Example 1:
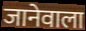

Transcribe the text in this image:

जानेवाला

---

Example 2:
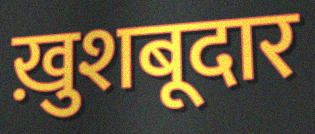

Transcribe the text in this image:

ख़ुशबूदार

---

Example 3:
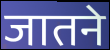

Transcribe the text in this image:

जातने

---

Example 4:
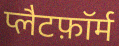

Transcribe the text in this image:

प्लैटफ़ॉर्म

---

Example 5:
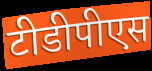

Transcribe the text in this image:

टीडीपीएस